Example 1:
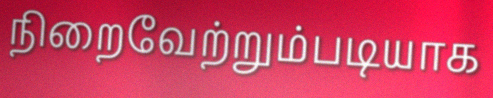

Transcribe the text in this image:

நிறைவேற்றும்படியாக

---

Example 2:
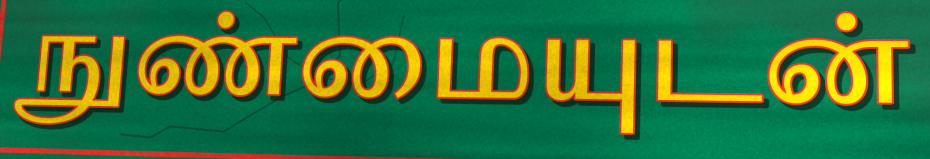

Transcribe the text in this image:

நுண்மையுடன்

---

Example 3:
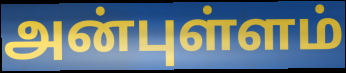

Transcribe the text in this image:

அன்புள்ளம்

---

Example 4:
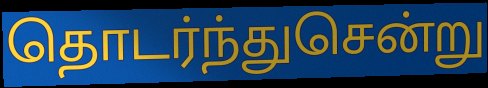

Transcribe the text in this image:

தொடர்ந்துசென்று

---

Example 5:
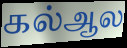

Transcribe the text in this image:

கல்ஆல